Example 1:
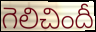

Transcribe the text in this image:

గెలిచిందీ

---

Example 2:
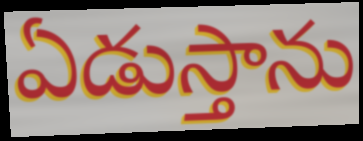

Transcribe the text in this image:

ఏడుస్తాను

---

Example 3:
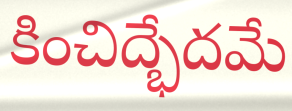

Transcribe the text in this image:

కించిద్భేదమే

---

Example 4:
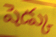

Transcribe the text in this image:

షెడ్కు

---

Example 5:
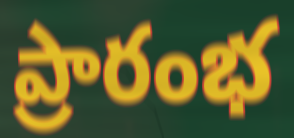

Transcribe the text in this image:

ప్రారంభ